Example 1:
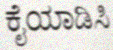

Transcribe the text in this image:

ಕೈಯಾಡಿಸಿ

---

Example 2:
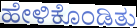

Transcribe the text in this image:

ಹೇಳಿಕೊಂಡಿತು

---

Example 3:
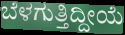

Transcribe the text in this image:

ಬೆಳಗುತ್ತಿದ್ದೀಯೆ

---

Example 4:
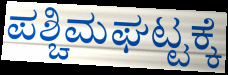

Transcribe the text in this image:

ಪಶ್ಚಿಮಘಟ್ಟಕ್ಕೆ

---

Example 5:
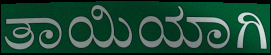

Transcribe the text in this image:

ತಾಯಿಯಾಗಿ